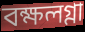
বক্ষলগ্না